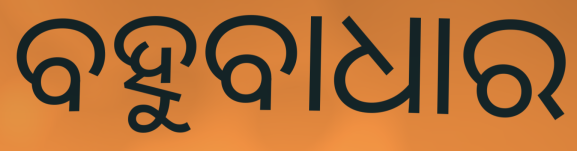
ବହୁବାଧାର